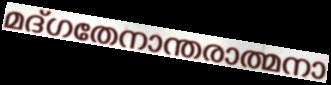
മദ്ഗതേനാന്തരാത്മനാ